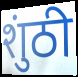
शुंठी